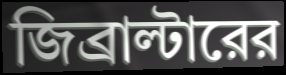
জিব্রাল্টারের